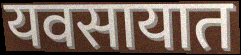
यवसायात